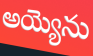
అయ్యెను